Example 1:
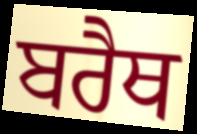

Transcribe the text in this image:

ਬਰੈਥ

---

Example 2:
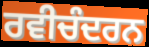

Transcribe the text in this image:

ਰਵੀਚੰਦਰਨ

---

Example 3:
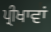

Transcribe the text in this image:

ਪ੍ਰੀਖਾਵਾਂ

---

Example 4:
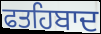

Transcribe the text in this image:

ਫਤਹਿਬਾਦ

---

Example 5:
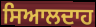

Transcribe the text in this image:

ਸਿਆਲਦਾਹ